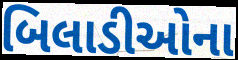
બિલાડીઓના